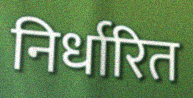
निर्धारित